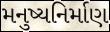
મનુષ્યનિર્માણ